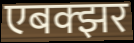
एबक्झर